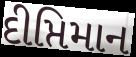
દીપ્તિમાન